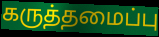
கருத்தமைப்பு